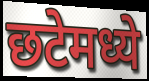
छटेमध्ये